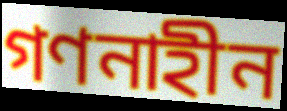
গণনাহীন